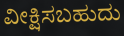
ವೀಕ್ಷಿಸಬಹುದು